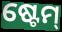
ଷ୍ଟେମ୍